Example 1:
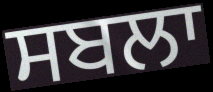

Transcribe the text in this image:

ਸਬਲਾ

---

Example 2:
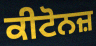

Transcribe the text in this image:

ਕੀਟੋਨਜ਼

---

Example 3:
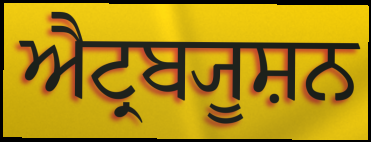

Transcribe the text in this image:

ਐਟ੍ਰਬ੍ਯੂਸ਼ਨ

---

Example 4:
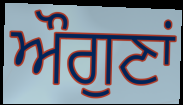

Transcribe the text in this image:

ਔਗੁਣਾਂ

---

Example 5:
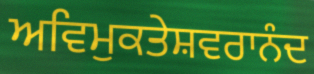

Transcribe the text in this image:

ਅਵਿਮੁਕਤੇਸ਼ਵਰਾਨੰਦ